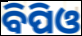
ବିପିଓ